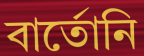
বার্তোনি